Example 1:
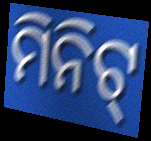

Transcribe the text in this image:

ମିନିଟ୍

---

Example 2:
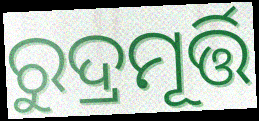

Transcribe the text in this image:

ରୁଦ୍ରମୂର୍ତ୍ତି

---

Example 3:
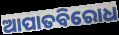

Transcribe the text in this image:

ଆପାତବିରୋଧ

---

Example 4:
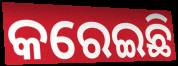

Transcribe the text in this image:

କରେଇଛି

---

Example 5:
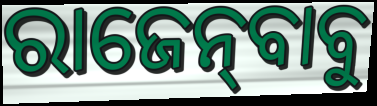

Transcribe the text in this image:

ରାଜେନ୍‌ବାବୁ